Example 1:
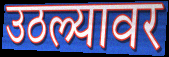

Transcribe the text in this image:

उठल्यावर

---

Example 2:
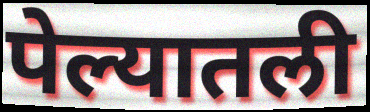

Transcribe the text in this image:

पेल्यातली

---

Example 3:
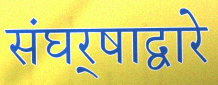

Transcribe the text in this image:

संघर्षाद्वारे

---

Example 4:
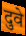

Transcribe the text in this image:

दुवे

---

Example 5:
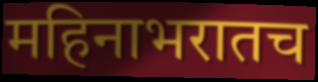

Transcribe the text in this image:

महिनाभरातच